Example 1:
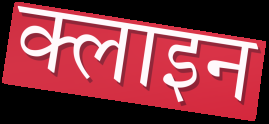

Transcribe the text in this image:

क्लाइन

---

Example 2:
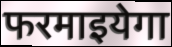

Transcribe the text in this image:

फरमाइयेगा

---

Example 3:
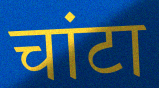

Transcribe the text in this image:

चांटा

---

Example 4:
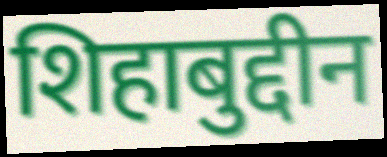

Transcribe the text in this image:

शिहाबुद्दीन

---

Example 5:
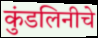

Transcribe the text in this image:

कुंडलिनीचे